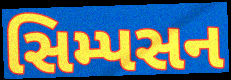
સિમ્પસન